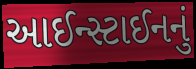
આઈન્સ્ટાઈનનું